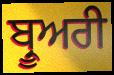
ਬ੍ਰੂਅਰੀ